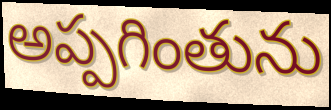
అప్పగింతును